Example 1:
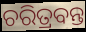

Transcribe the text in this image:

ଚରିତ୍ରବନ୍ତ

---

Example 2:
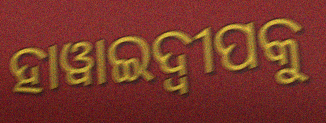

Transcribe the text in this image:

ହାୱାଇଦ୍ଵୀପକୁ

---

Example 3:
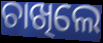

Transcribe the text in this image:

ଚାଖିଲେ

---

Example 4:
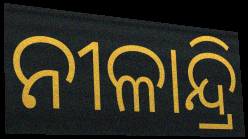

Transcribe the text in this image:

ନୀଳାନ୍ଦ୍ରି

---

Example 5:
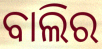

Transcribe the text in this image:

ବାଲିର